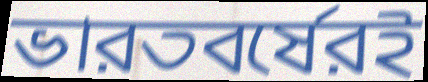
ভারতবর্ষেরই